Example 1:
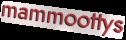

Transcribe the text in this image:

mammoottys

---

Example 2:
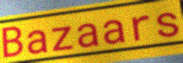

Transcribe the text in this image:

Bazaars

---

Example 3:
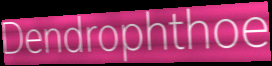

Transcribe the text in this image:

Dendrophthoe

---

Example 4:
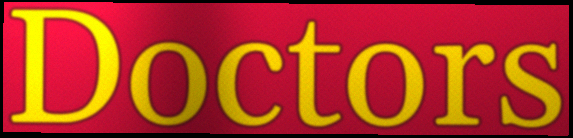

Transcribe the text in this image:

Doctors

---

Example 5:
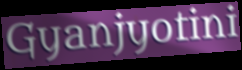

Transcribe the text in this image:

Gyanjyotini